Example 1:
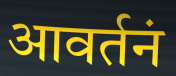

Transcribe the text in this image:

आवर्तनं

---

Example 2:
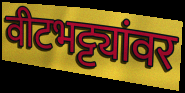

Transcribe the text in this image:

वीटभट्ट्यांवर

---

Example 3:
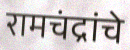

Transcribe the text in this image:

रामचंद्रांचे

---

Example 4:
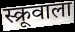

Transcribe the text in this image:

स्क्रूवाला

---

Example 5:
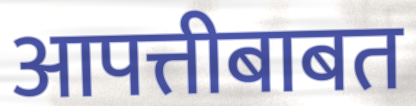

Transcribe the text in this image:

आपत्तीबाबत